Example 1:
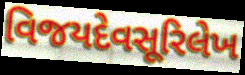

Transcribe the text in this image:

વિજયદેવસૂરિલેખ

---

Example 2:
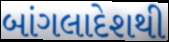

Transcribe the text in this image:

બાંગલાદેશથી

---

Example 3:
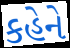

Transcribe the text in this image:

કહેને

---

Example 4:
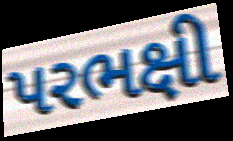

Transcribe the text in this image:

પરભક્ષી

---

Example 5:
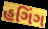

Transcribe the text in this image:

હગિંગ